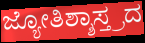
ಜ್ಯೋತಿಶ್ಶಾಸ್ತ್ರದ